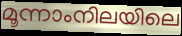
മൂന്നാംനിലയിലെ